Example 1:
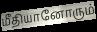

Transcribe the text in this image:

மீதியானோரும்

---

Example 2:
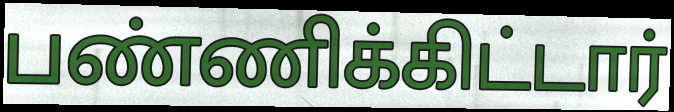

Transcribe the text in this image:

பண்ணிக்கிட்டார்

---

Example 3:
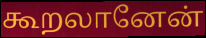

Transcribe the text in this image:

கூறலானேன்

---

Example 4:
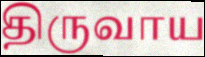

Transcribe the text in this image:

திருவாய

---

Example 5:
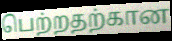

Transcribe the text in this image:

பெற்றதற்கான